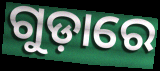
ଗୁଡ଼ାରେ